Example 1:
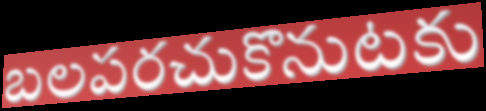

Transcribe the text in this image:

బలపరచుకొనుటకు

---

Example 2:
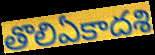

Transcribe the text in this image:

తొలిఏకాదశి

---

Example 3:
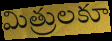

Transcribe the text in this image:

మిత్రులకూ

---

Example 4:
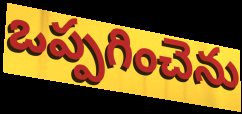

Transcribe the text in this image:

ఒప్పగించెను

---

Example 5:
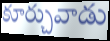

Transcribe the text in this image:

కూర్చువాడు